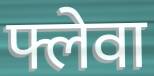
फ्लेवा